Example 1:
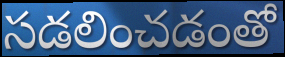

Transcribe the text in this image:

సడలించడంతో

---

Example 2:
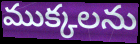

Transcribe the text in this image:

ముక్కలను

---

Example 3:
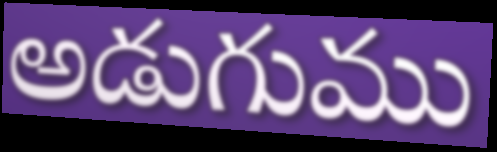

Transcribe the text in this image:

అడుగుము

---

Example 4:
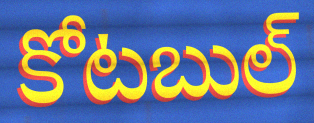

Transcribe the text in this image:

కోటబుల్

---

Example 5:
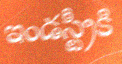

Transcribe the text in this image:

ఇండస్ట్రీకి